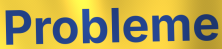
Probleme